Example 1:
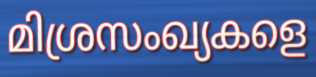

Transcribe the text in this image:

മിശ്രസംഖ്യകളെ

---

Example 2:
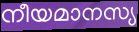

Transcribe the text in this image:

നീയമാനസ്യ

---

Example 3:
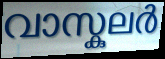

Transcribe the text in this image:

വാസ്കുലർ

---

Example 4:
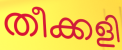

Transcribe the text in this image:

തീക്കളി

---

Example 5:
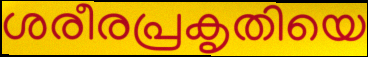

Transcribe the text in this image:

ശരീരപ്രകൃതിയെ